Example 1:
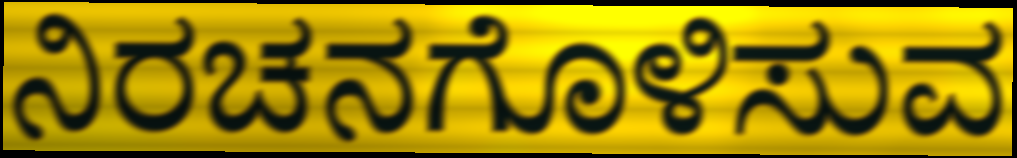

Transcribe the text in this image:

ನಿರಚನಗೊಳಿಸುವ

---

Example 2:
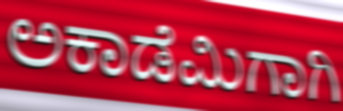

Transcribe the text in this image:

ಅಕಾಡೆಮಿಗಾಗಿ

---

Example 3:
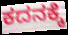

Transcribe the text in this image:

ಕದನಕ್ಕೆ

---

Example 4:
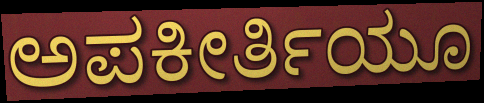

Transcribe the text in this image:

ಅಪಕೀರ್ತಿಯೂ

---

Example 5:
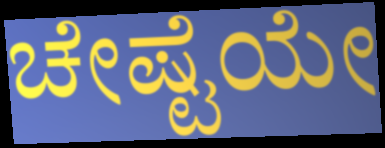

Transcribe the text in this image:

ಚೇಷ್ಟೆಯೇ